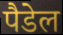
पैडेल